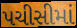
પચીસીમાં